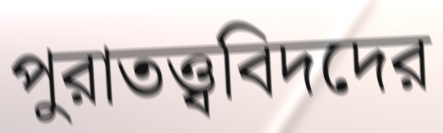
পুরাতত্ত্ববিদদের